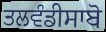
ਤਲਵੰਡੀਸਾਬੋ